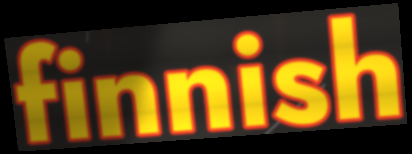
finnish